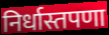
निर्धास्तपणा